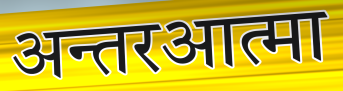
अन्तरआत्मा